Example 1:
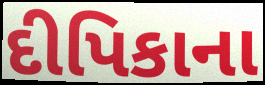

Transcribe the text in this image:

દીપિકાના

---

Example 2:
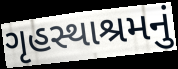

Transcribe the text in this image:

ગૃહસ્થાશ્રમનું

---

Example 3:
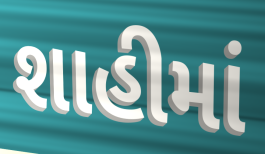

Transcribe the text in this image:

શાહીમાં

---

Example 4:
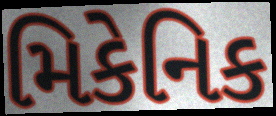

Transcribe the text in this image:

મિકેનિક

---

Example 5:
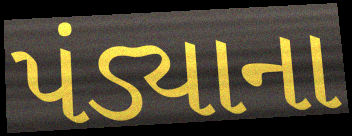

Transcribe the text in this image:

પંડ્યાના